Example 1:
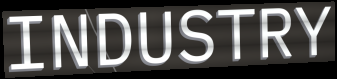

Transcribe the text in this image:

INDUSTRY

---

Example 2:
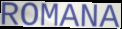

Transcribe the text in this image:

ROMANA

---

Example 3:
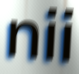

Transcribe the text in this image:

nii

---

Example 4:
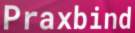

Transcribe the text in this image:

Praxbind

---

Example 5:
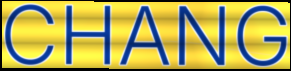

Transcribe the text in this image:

CHANG